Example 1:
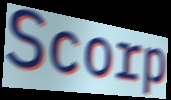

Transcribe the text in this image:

Scorp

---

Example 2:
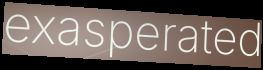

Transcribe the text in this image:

exasperated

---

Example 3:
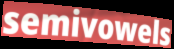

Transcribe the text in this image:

semivowels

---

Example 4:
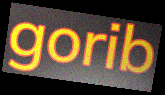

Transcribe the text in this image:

gorib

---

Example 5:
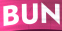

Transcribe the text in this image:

BUN